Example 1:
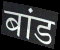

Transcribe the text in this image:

बांड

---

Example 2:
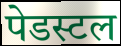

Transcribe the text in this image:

पेडस्टल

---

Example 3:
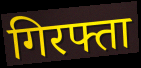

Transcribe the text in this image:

गिरफ्ता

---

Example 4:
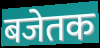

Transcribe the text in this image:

बजेतक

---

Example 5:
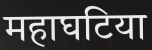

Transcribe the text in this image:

महाघटिया